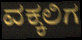
ವಕ್ಕಲಿಗ